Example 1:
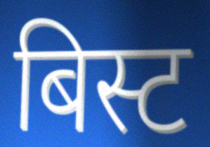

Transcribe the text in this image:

बिस्ट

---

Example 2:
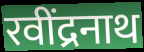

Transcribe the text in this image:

रवींद्रनाथ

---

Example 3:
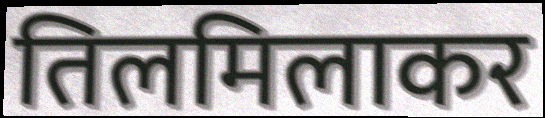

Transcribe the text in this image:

तिलमिलाकर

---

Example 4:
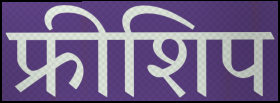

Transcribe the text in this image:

फ्रीशिप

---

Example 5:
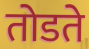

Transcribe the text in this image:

तोडते